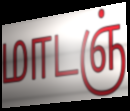
மாடஞ்